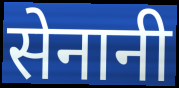
सेनानी